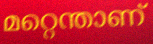
മറ്റെന്താണ്